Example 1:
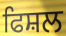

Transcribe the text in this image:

ਫਿਸ਼ਲ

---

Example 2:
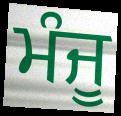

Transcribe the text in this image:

ਮੰਜੂ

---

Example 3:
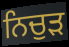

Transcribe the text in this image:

ਨਿਚੁੜ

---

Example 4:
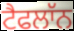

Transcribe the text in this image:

ਟੈਫਲਾੱਨ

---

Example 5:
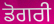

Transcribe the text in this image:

ਡੋਗਰੀ